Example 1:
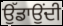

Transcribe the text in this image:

ਉੱਡਾਉਂਦੀ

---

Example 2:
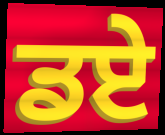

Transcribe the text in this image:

ਡਏ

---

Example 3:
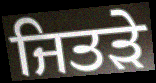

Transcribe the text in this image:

ਜਿਤੜੇ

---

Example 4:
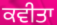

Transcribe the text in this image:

ਕਵੀਤਾ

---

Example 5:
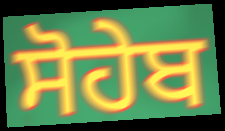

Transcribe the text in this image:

ਸੋਹੇਬ